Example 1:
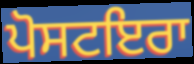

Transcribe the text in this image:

ਪੋਸਟਇਰਾ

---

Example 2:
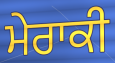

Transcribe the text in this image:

ਮੇਰਾਕੀ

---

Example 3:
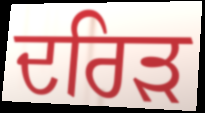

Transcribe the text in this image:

ਦਰਿੜ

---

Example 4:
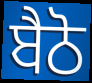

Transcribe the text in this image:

ਬੈਠੋ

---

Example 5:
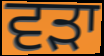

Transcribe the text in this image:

ਵੜਾ